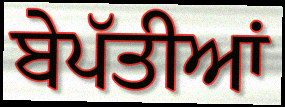
ਬੇਪੱਤੀਆਂ